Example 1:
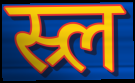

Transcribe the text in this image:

स्र्ल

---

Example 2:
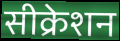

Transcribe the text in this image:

सीक्रेशन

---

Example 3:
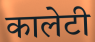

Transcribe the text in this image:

कालेटी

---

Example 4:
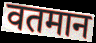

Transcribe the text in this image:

वतमान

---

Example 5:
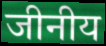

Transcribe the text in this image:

जीनीय